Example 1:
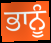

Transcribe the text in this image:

ਭਾਨੂੰ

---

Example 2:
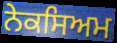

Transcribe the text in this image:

ਨੇਕਸਿਅਮ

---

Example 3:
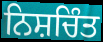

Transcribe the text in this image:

ਨਿਸ਼ਚਿੰਤ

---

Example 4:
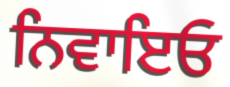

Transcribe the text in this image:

ਨਿਵਾਇਓ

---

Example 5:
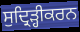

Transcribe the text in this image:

ਸੁਦ੍ਰਿੜ੍ਹੀਕਰਨ